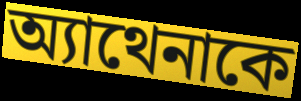
অ্যাথেনাকে